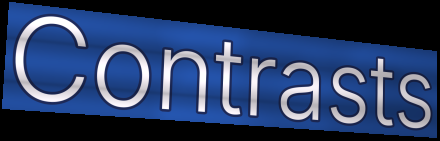
Contrasts